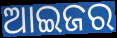
ଆଇଜର